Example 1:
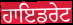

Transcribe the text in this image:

ਹਾਇਡਰੇਟ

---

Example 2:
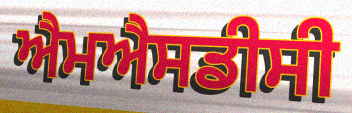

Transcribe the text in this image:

ਐਮਐਸਡੀਸੀ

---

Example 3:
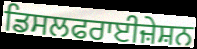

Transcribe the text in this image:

ਡਿਸਲਫਰਾਈਜ਼ੇਸ਼ਨ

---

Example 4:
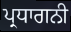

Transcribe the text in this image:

ਪ੍ਰਧਾਗਨੀ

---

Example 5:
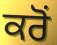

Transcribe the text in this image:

ਕਰੋਂ